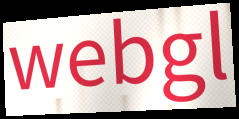
webgl